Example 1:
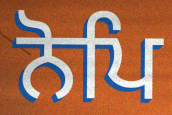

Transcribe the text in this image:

ਨੋਪਿ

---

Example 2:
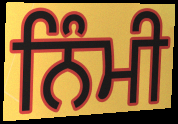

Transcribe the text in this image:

ਨਿੰਮੀ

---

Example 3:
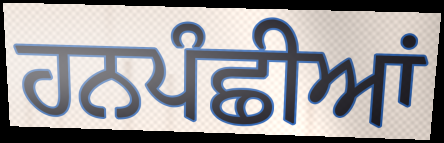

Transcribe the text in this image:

ਹਨਪੰਛੀਆਂ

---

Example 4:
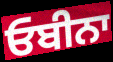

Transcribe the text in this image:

ਓਬੀਨਾ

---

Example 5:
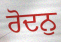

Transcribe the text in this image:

ਰੋਦਨੁ